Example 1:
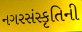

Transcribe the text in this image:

નગરસંસ્કૃતિની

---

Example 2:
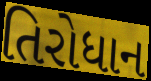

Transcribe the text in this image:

તિરોધાન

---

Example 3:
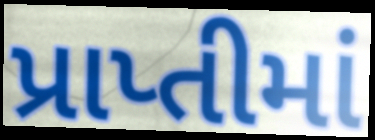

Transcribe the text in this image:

પ્રાપ્તીમાં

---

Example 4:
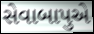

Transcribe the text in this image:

સેવાબાપુએ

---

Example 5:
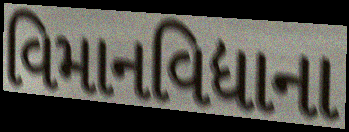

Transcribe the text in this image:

વિમાનવિદ્યાના